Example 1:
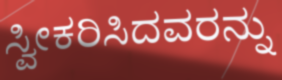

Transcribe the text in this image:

ಸ್ವೀಕರಿಸಿದವರನ್ನು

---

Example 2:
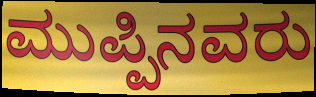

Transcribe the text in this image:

ಮುಪ್ಪಿನವರು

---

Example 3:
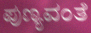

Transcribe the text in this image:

ಪುಣ್ಯವಂತೆ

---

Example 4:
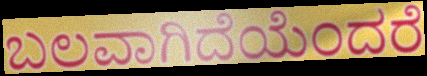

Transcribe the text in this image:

ಬಲವಾಗಿದೆಯೆಂದರೆ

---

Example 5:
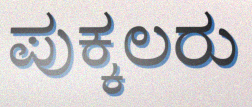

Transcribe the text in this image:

ಪುಕ್ಕಲರು